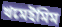
খমেইমিম